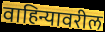
वाहिन्यावरील